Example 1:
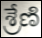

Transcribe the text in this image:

శ్రేణి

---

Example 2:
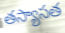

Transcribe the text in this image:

తస్యాసత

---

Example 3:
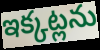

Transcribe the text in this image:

ఇక్కట్లను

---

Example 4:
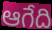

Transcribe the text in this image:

ఆగేది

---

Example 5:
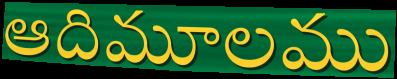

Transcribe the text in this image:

ఆదిమూలము